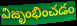
విజృంభించడం